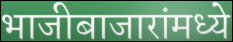
भाजीबाजारांमध्ये